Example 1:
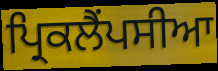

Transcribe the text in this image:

ਪ੍ਰਿਕਲੈਂਪਸੀਆ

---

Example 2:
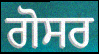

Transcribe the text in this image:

ਗੋਸਰ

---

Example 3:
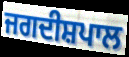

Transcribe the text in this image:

ਜਗਦੀਸ਼ਪਾਲ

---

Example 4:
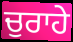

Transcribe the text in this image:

ਚੁਰਾਹੇ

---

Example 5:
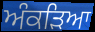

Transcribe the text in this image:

ਅੰਕੜਿਆ